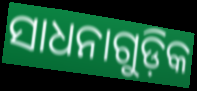
ସାଧନାଗୁଡ଼ିକ